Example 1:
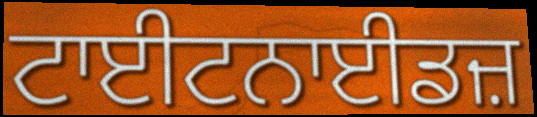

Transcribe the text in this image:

ਟਾਈਟਨਾਈਡਜ਼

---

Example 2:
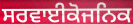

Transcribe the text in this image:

ਸਰਵਾਈਕੋਜਨਿਕ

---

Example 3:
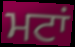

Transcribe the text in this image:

ਮਟਾਂ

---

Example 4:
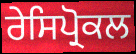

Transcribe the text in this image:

ਰੇਸਿਪ੍ਰੋਕਲ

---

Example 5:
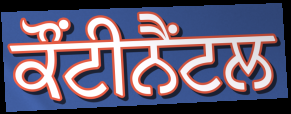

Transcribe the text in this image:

ਕੌਂਟੀਨੈਂਟਲ